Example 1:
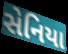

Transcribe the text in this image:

સેનિયા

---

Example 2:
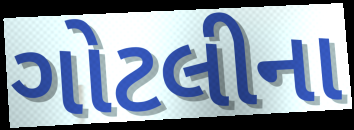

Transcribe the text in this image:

ગોટલીના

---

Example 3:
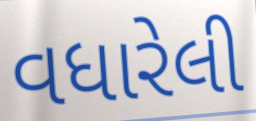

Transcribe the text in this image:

વધારેલી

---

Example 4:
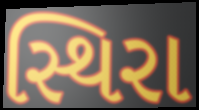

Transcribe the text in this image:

સ્થિરા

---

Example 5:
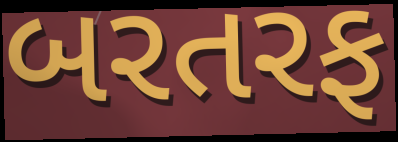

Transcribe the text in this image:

બરતરફ